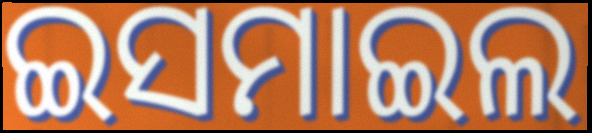
ଇସମାଇଲ